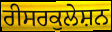
ਰੀਸਰਕੁਲੇਸ਼ਨ